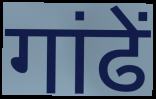
गांढें